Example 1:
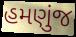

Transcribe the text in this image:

હમણુંજ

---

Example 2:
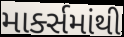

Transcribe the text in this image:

માર્ક્સમાંથી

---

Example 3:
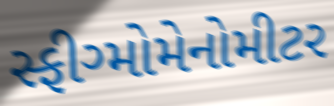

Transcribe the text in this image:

સ્ફીગ્મોમેનોમીટર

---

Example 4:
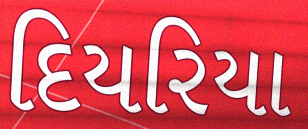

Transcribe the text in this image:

દિયરિયા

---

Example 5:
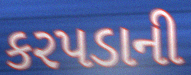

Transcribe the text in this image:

કરપડાની